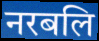
नरबलि